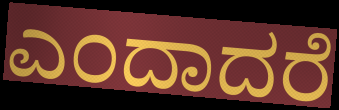
ಎಂದಾದರೆ